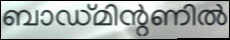
ബാഡ്മിന്റണിൽ